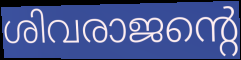
ശിവരാജന്റെ